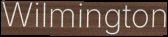
Wilmington